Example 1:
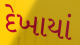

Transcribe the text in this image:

દેખાયાં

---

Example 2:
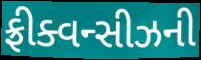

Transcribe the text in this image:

ફ્રીક્વન્સીઝની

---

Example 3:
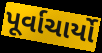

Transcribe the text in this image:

પૂર્વાચાર્યો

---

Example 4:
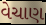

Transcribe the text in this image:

વેચાણ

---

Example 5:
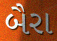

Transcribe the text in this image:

બૈરા